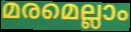
മരമെല്ലാം